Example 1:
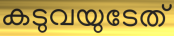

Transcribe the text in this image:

കടുവയുടേത്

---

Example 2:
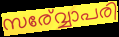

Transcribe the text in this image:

സര്വ്വോപരി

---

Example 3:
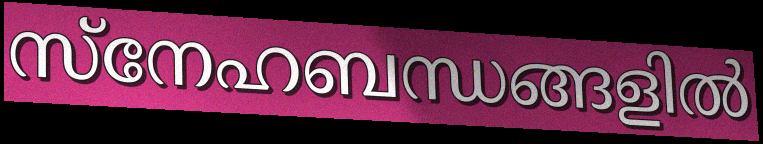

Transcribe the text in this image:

സ്നേഹബന്ധങ്ങളിൽ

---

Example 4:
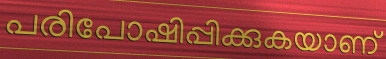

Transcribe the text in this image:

പരിപോഷിപ്പിക്കുകയാണ്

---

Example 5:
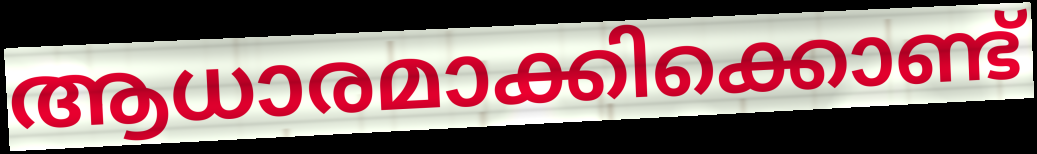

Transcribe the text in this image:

ആധാരമാക്കിക്കൊണ്ട്